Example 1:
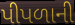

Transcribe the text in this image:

પીપળાની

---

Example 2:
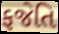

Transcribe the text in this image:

ફજેતિ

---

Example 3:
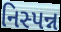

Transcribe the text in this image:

નિસ્પન્ન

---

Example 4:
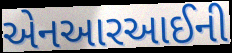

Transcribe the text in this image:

એનઆરઆઈની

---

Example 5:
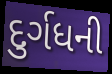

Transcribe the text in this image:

દુર્ગધની